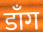
डाँग